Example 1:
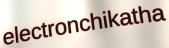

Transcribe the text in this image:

electronchikatha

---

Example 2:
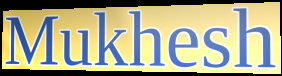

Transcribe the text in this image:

Mukhesh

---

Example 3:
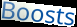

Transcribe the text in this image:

Boosts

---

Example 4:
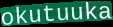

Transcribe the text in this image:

okutuuka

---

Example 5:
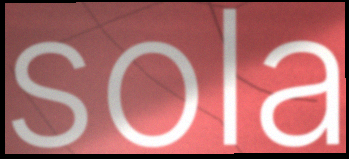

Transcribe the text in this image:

sola